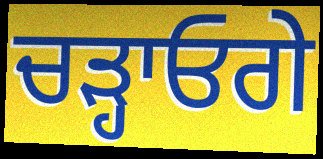
ਚੜ੍ਹਾਓਗੇ